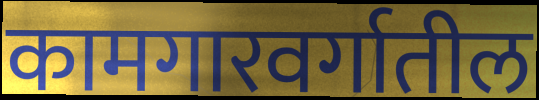
कामगारवर्गातील